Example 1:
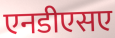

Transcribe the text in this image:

एनडीएसए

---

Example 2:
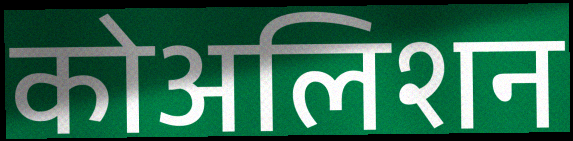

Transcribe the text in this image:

कोअलिशन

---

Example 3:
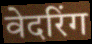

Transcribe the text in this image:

वेदरिंग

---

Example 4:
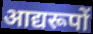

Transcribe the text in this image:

आद्यरूपों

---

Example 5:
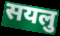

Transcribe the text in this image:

सयलु